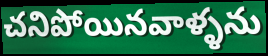
చనిపోయినవాళ్ళను